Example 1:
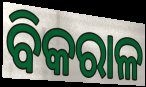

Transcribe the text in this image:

ବିକରାଳ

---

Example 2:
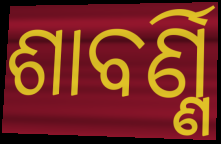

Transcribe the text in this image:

ଶାବର୍ଣ୍ଣି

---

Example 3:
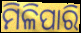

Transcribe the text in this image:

ମିଳିପାରି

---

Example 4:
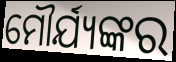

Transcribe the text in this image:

ମୌର୍ଯ୍ୟଙ୍କର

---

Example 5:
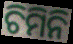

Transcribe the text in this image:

ଚିମିନି